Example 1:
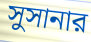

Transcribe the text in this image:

সুসানার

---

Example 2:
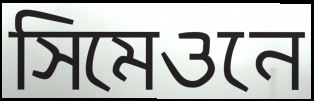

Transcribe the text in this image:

সিমেওনে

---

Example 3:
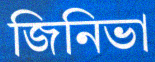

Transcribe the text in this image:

জিনিভা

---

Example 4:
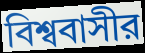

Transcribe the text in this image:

বিশ্ববাসীর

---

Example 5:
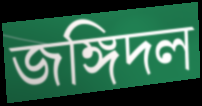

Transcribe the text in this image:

জঙ্গিদল